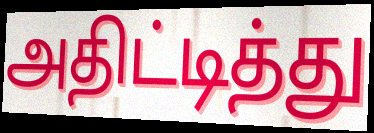
அதிட்டித்து